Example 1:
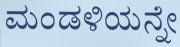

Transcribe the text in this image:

ಮಂಡಳಿಯನ್ನೇ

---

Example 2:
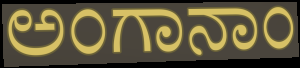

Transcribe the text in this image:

ಅಂಗಾನಾಂ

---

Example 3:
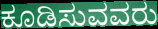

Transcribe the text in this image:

ಕೂಡಿಸುವವರು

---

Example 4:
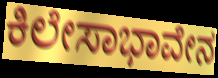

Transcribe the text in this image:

ಕಿಲೇಸಾಭಾವೇನ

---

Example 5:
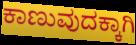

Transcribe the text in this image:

ಕಾಣುವುದಕ್ಕಾಗಿ